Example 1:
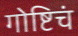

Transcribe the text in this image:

गोष्टिचं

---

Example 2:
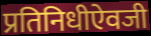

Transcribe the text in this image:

प्रतिनिधीऐवजी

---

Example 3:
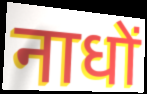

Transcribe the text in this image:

नाधों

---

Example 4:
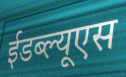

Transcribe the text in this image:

ईडब्ल्यूएस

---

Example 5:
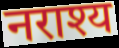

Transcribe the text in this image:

नराश्य